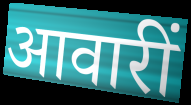
आवारीं